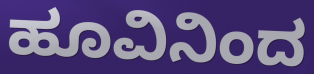
ಹೂವಿನಿಂದ